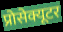
प्रोसेक्यूटर